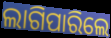
ଲାଗିପାରିଲେ